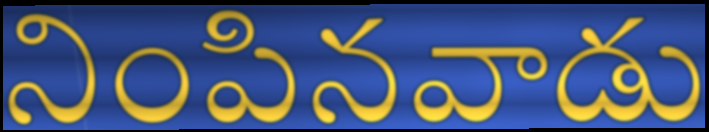
నింపినవాడు